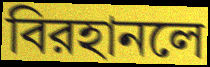
বিরহানলে